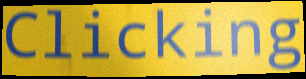
Clicking